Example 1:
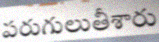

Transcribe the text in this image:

పరుగులుతీశారు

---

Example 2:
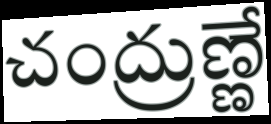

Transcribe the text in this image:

చంద్రుణ్ణే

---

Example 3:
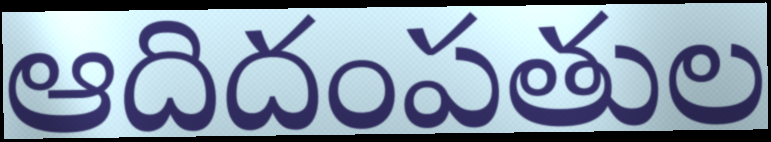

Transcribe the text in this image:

ఆదిదంపతుల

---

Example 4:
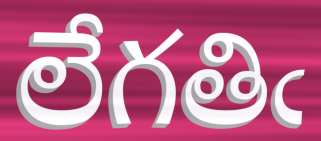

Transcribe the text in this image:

లేగతిఁ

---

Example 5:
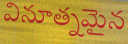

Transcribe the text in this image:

వినూత్నమైన